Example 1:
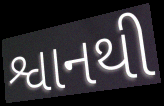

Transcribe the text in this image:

શ્વાનથી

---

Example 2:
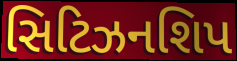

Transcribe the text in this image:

સિટિઝનશિપ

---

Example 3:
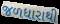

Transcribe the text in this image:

જળધારાથી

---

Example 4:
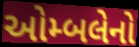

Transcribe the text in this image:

ઓમ્બલેનો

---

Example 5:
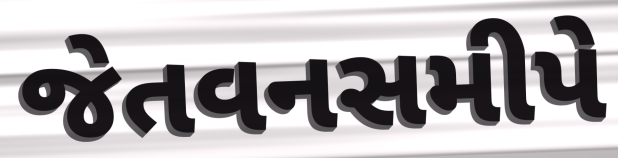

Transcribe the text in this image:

જેતવનસમીપે